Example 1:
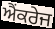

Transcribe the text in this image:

ਐਂਕਰੇਜ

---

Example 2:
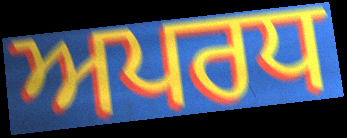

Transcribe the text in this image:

ਅਪਰਧ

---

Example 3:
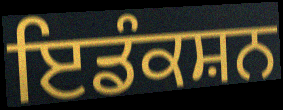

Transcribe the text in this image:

ਇਡੰਕਸ਼ਨ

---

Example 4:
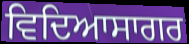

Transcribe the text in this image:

ਵਿਦਿਆਸਾਗਰ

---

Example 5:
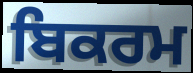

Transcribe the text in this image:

ਬਿਕਰਮ